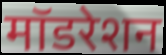
मॉडरेशन